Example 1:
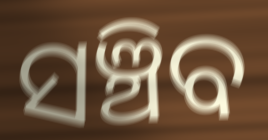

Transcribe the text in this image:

ସଞ୍ଚିବ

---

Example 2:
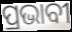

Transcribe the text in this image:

ପ୍ରଭାବୀ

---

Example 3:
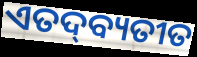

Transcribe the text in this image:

ଏତଦ୍‍ବ୍ୟତୀତ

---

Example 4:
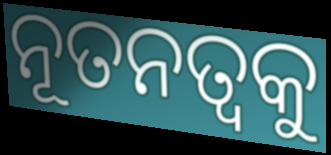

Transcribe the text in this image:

ନୂତନତ୍ବକୁ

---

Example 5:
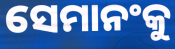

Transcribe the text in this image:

ସେମାନଂକୁ